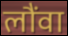
लौंवा